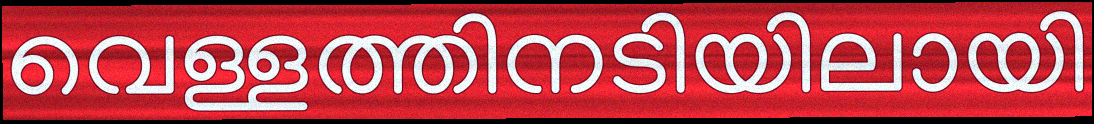
വെള്ളത്തിനടിയിലായി